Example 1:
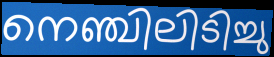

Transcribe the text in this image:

നെഞ്ചിലിടിച്ചു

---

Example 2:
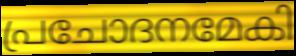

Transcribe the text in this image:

പ്രചോദനമേകി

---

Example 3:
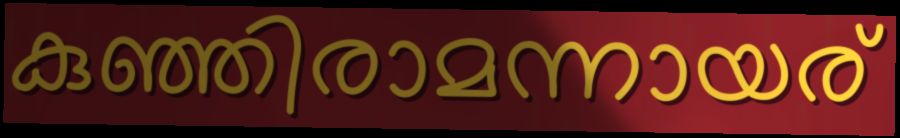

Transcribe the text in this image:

കുഞ്ഞിരാമന്നായര്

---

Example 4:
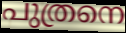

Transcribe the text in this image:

പുത്രനെ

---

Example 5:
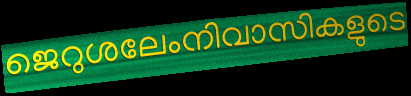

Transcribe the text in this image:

ജെറുശലേംനിവാസികളുടെ